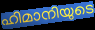
ഹിമാനിയുടെ